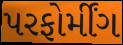
પરફોર્મીંગ